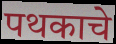
पथकाचे